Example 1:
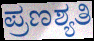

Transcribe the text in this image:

ಪ್ರಣಶ್ಯತಿ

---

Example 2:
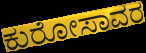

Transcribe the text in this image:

ಕುರೋಸಾವರ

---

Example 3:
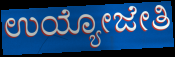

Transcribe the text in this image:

ಉಯ್ಯೋಜೇತಿ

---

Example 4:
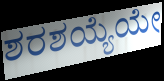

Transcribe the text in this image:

ಶರಶಯ್ಯೆಯೇ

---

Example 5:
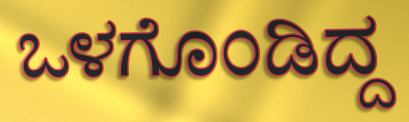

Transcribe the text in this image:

ಒಳಗೊಂಡಿದ್ದ